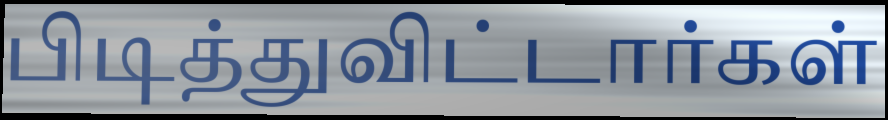
பிடித்துவிட்டார்கள்